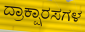
ದ್ರಾಕ್ಷಾರಸಗಳ